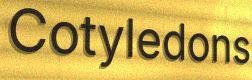
Cotyledons